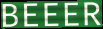
BEEER